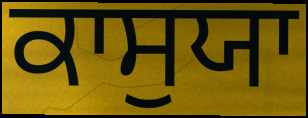
ਕਾਸੁਯਾ